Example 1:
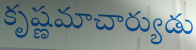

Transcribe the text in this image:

కృష్ణమాచార్యుడు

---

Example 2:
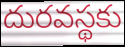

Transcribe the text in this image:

దురవస్థకు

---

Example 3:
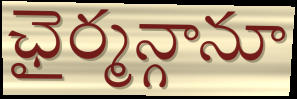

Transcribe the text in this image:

ఛైర్మన్గానూ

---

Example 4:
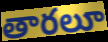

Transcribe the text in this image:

తారలూ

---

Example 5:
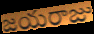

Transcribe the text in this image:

జయరాజు